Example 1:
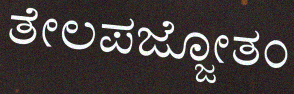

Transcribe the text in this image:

ತೇಲಪಜ್ಜೋತಂ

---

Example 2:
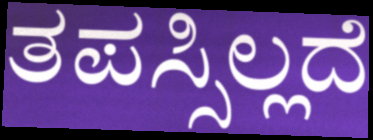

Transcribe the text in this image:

ತಪಸ್ಸಿಲ್ಲದೆ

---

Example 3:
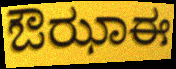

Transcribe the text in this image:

ಔಝಾಈ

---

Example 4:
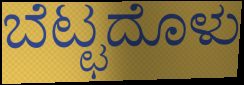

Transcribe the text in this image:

ಬೆಟ್ಟದೊಳು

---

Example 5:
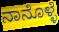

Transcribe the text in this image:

ನಾನೊಳ್ಳೆ